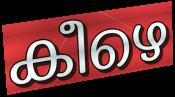
കീഴെ